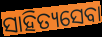
ସାହିତ୍ୟସେବା